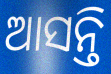
ଆସନ୍ତି